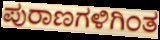
ಪುರಾಣಗಳಿಗಿಂತ